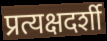
प्रत्यक्षदर्शी